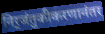
निर्जंतुकीकरणानंतर